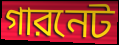
গারনেট